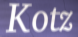
Kotz